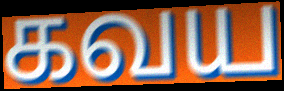
கவய